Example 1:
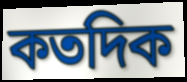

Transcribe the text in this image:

কতদিক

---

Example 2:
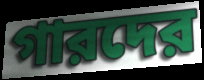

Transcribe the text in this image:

গারদের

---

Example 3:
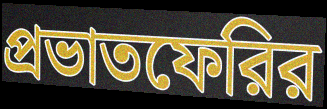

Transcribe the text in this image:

প্রভাতফেরির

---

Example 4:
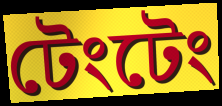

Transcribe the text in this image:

টেংটেং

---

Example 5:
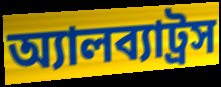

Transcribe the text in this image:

অ্যালব্যাট্রস